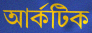
আর্কটিক